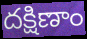
దక్షిణాం